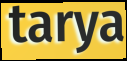
tarya